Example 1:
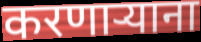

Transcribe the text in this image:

करणाऱ्याना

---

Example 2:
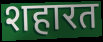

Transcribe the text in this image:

शहारत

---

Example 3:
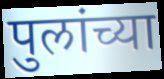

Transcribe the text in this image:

पुलांच्या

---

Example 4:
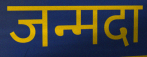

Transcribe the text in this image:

जन्मदा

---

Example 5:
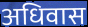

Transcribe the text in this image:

अधिवास